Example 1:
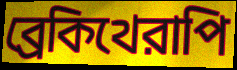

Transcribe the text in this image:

ব্রেকিথেরাপি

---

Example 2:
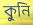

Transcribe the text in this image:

কুনি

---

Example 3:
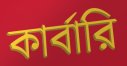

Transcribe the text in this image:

কার্বারি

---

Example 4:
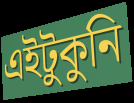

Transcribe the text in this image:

এইটুকুনি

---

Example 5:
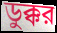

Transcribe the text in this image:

ডুক্কর